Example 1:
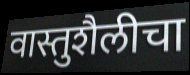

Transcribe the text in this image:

वास्तुशैलीचा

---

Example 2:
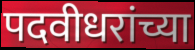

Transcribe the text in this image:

पदवीधरांच्या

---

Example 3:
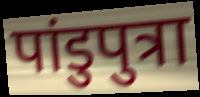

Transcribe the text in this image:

पांडुपुत्रा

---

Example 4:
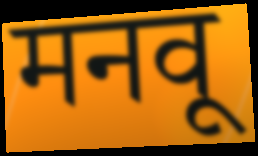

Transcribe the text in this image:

मनवू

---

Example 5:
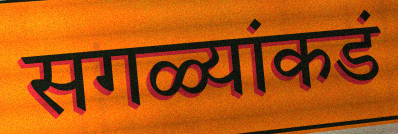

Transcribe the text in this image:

सगळ्यांकडं